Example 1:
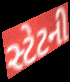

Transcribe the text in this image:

સ્ટેટની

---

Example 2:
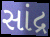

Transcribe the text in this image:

સાંદ્ર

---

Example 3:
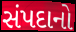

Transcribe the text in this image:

સંપદાનો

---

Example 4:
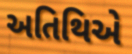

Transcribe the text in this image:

અતિથિએ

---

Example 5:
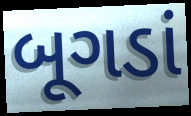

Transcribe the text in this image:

બૂગડાં